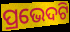
ପ୍ରଭେଦଟି